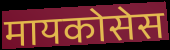
मायकोसेस